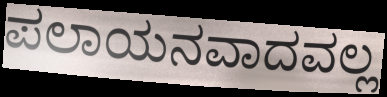
ಪಲಾಯನವಾದವಲ್ಲ